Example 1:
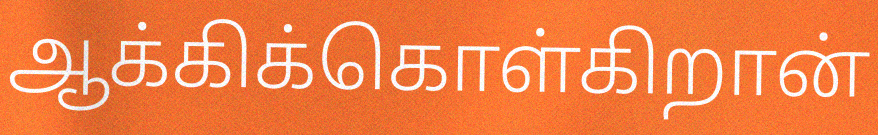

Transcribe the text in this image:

ஆக்கிக்கொள்கிறான்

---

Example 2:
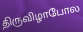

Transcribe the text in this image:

திருவிழாபோல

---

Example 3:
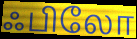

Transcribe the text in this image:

ஃபிலோ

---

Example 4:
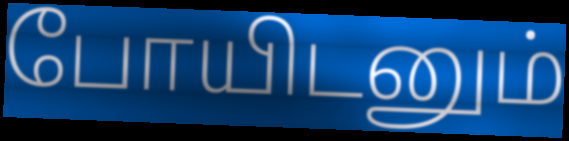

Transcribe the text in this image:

போயிடனும்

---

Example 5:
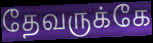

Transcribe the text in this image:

தேவருக்கே